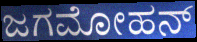
ಜಗಮೋಹನ್